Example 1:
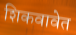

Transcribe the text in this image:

शिकवावेत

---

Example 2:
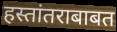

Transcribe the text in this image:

हस्तांतराबाबत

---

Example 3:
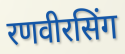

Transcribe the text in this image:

रणवीरसिंग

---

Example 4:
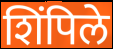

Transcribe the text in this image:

शिंपिले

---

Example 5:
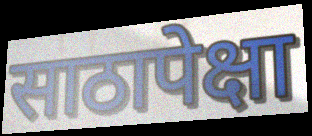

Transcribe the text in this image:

साठापेक्षा